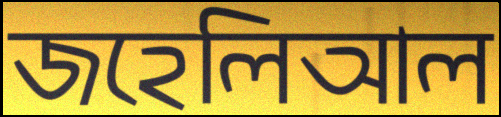
জহেলিআল